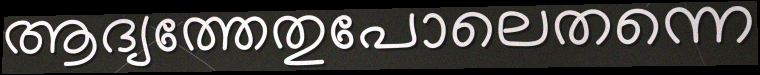
ആദ്യത്തേതുപോലെതന്നെ